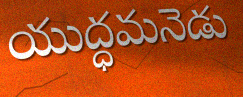
యుద్ధమనెడు